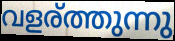
വളര്ത്തുന്നു